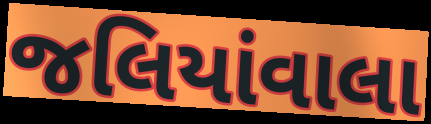
જલિયાંવાલા